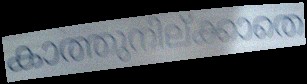
കാത്തുനില്ക്കാതെ